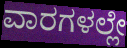
ವಾರಗಳಲ್ಲೇ